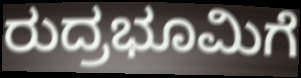
ರುದ್ರಭೂಮಿಗೆ